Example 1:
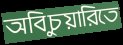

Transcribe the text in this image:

অবিচুয়ারিতে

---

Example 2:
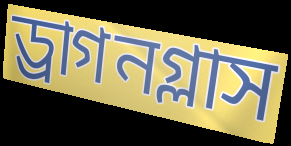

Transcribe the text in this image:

ড্রাগনগ্লাস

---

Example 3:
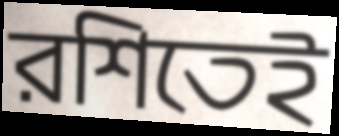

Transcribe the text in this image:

রশিতেই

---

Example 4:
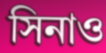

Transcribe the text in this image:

সিনাও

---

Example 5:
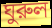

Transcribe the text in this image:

ঘুরুল